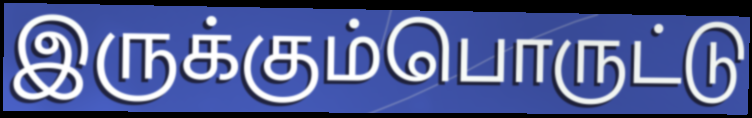
இருக்கும்பொருட்டு